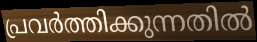
പ്രവർത്തിക്കുന്നതിൽ